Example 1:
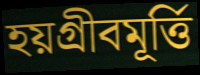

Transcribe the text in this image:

হয়গ্রীবমূর্ত্তি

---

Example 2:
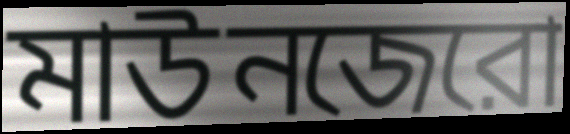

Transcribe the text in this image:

মাউনজেরো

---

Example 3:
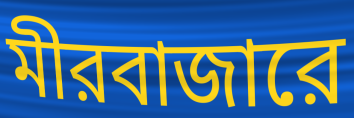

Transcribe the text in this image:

মীরবাজারে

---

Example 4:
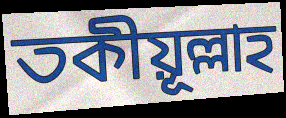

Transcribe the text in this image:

তকীয়ূল্লাহ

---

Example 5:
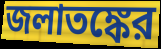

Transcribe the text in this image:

জলাতঙ্কের